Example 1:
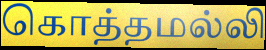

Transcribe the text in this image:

கொத்தமல்லி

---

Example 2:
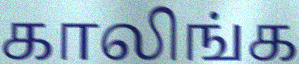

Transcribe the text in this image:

காலிங்க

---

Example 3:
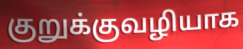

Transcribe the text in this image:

குறுக்குவழியாக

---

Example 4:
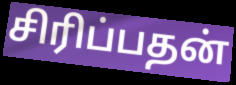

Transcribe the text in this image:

சிரிப்பதன்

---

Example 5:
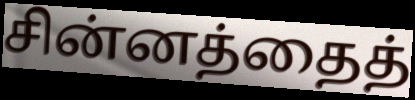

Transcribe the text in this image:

சின்னத்தைத்